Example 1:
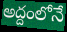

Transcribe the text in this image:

అద్దంలోనే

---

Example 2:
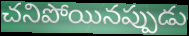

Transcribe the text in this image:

చనిపోయినప్పుడు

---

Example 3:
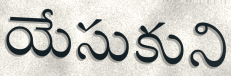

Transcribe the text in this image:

యేసుకుని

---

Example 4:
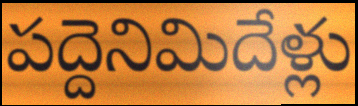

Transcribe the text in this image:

పద్దెనిమిదేళ్లు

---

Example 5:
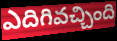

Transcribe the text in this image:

ఎదిగివచ్చింది